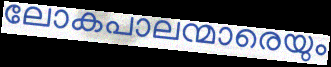
ലോകപാലന്മാരെയും